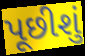
પૂછીશું